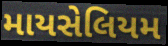
માયસેલિયમ